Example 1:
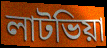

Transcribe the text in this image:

লাটভিয়া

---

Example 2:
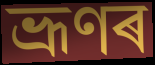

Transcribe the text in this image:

ভ্ৰূণৰ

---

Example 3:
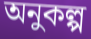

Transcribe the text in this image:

অনুকল্প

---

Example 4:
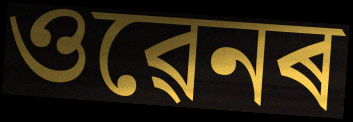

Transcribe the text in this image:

ওৱেনৰ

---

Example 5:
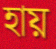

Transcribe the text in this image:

হায়